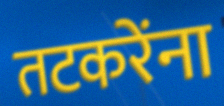
तटकरेंना